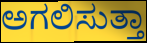
ಅಗಲಿಸುತ್ತಾ